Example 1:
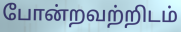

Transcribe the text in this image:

போன்றவற்றிடம்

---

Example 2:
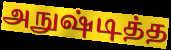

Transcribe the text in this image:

அநுஷ்டித்த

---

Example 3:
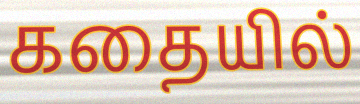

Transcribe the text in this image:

கதையில்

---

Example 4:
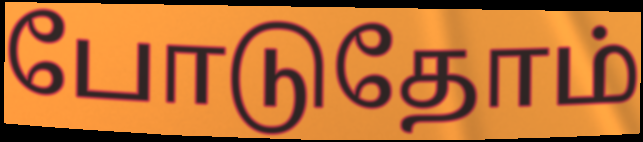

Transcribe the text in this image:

போடுதோம்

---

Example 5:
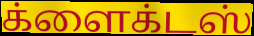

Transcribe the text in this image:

க்ளைக்டஸ்